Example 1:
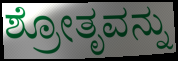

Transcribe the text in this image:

ಶ್ರೋತೃವನ್ನು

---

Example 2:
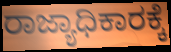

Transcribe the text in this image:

ರಾಜ್ಯಾಧಿಕಾರಕ್ಕೆ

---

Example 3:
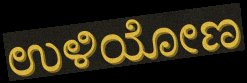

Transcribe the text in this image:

ಉಳಿಯೋಣ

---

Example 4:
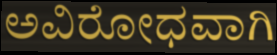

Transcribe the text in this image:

ಅವಿರೋಧವಾಗಿ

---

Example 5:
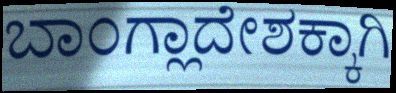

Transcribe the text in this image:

ಬಾಂಗ್ಲಾದೇಶಕ್ಕಾಗಿ